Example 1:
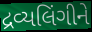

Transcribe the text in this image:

દ્રવ્યલિંગીને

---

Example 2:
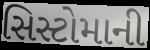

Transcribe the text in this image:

સિસ્ટોમાની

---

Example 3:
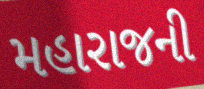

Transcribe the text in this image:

મહારાજની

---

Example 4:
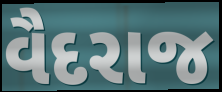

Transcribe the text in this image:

વૈદરાજ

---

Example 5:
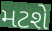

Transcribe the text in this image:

મટશે